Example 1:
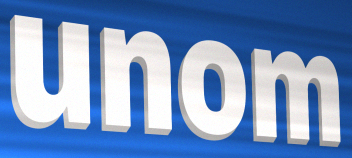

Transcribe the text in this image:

unom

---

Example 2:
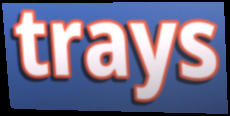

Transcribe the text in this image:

trays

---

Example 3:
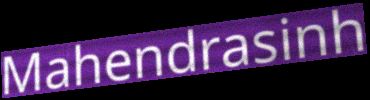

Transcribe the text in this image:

Mahendrasinh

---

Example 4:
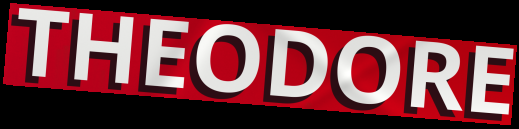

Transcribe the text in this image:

THEODORE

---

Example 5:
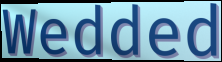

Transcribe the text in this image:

Wedded